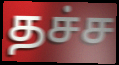
தச்ச